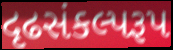
દૃઢસંકલ્પરૂપ